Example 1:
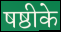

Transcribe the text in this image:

षष्ठीके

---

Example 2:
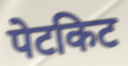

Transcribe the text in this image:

पेटकिट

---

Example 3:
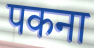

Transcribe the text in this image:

पकना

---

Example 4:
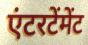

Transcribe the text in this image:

एंटरटेंमेंट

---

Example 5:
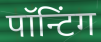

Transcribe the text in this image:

पॉन्टिंग